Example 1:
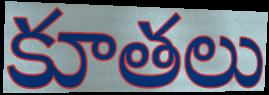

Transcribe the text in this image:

కూతలు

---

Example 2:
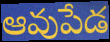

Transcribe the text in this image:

ఆవుపేడ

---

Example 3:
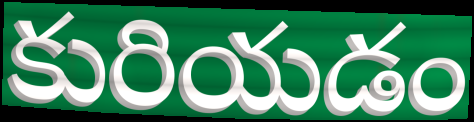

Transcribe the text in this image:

కురియడం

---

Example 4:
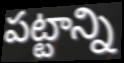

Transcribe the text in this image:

పట్టాన్ని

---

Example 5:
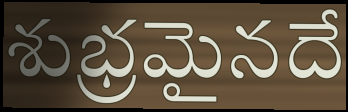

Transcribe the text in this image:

శుభ్రమైనదే